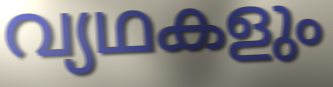
വ്യഥകളും